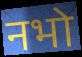
नभो